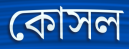
কোসল